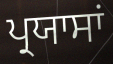
ਪ੍ਰਯਾਸਾਂ